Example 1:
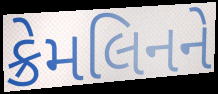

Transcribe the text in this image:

ક્રેમલિનને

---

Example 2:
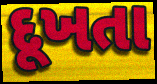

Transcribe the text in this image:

દૂખતા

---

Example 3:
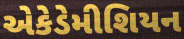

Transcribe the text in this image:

એકેડેમીશિયન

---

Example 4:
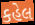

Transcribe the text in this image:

કહેલ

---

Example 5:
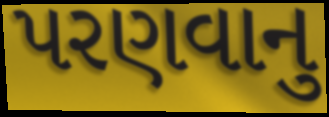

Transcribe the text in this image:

પરણવાનુ